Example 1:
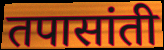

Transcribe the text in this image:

तपासांती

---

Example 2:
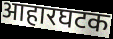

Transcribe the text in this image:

आहारघटक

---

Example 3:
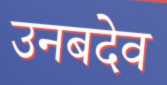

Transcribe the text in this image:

उनबदेव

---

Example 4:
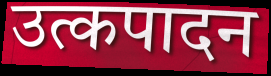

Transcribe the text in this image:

उत्कपादन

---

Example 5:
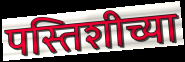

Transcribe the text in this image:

पस्तिशीच्या